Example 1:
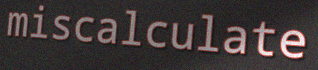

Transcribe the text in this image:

miscalculate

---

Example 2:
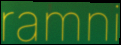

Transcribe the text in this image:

ramni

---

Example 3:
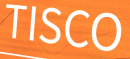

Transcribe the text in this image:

TISCO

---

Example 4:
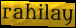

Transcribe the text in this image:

rahilay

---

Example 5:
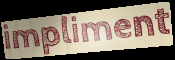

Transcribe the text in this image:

impliment